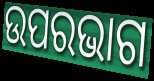
ଉପରଭାଗ